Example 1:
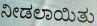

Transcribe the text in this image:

ನೀಡಲಾಯಿತು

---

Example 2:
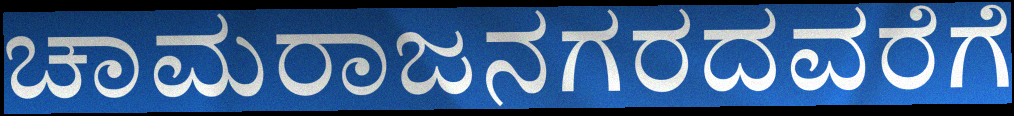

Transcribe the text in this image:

ಚಾಮರಾಜನಗರದವರೆಗೆ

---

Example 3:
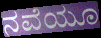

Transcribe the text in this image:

ನವೆಯೂ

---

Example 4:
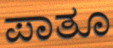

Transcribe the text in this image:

ಪಾತೂ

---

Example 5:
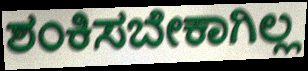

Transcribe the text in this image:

ಶಂಕಿಸಬೇಕಾಗಿಲ್ಲ